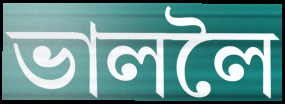
ভাললৈ